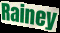
Rainey